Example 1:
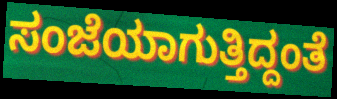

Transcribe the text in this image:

ಸಂಜೆಯಾಗುತ್ತಿದ್ದಂತೆ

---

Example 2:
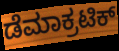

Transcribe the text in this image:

ಡೆಮಾಕ್ರಟಿಕ್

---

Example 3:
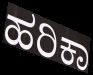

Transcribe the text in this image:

ಹರಿಕಾ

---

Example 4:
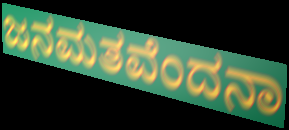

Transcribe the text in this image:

ಜನಮತವೆಂದನಾ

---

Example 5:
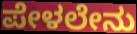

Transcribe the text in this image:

ಪೇಳಲೇನು